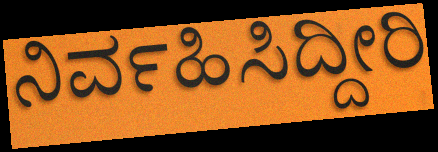
ನಿರ್ವಹಿಸಿದ್ದೀರಿ